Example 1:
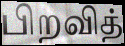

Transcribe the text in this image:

பிறவித்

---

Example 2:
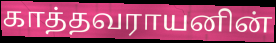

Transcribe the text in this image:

காத்தவராயனின்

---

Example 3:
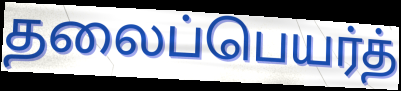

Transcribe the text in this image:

தலைப்பெயர்த்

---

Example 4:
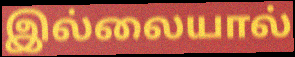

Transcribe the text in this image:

இல்லையால்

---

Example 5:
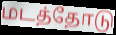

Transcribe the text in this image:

மடத்தோடு